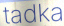
tadka